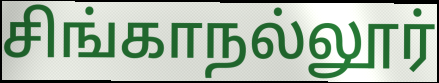
சிங்காநல்லூர்